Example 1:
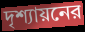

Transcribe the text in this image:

দৃশ্যায়নের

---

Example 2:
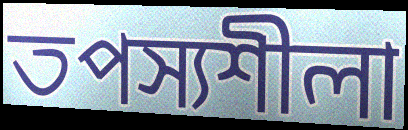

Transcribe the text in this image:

তপস্যশীলা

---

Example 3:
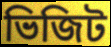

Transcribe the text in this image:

ভিজিট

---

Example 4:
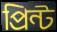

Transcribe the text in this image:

প্রিন্ট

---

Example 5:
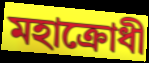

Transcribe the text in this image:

মহাক্রোধী